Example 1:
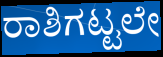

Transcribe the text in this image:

ರಾಶಿಗಟ್ಟಲೇ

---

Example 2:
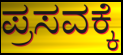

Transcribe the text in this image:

ಪ್ರಸವಕ್ಕೆ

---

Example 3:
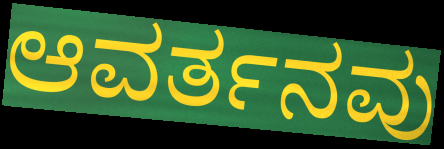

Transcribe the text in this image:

ಆವರ್ತನವು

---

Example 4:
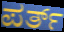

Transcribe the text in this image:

ಪರ್ತ್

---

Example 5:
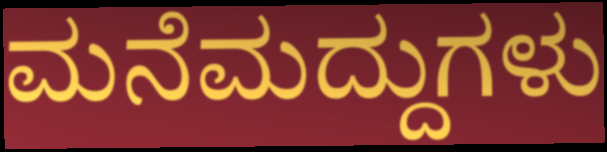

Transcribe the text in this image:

ಮನೆಮದ್ದುಗಳು